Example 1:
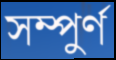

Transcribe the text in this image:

সম্পুৰ্ণ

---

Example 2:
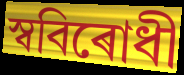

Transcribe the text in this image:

স্ববিৰোধী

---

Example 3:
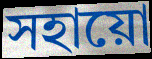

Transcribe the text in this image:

সহায়ো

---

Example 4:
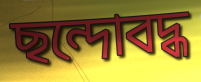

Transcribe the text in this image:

ছন্দোবদ্ধ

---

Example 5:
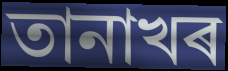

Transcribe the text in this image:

তানাখৰ